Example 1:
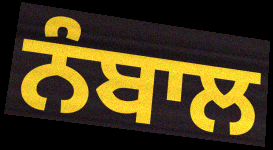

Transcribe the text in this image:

ਨੰਬਾਲ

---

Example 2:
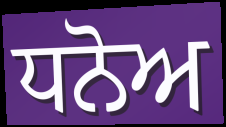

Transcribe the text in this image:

ਧਨੋਅ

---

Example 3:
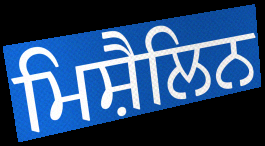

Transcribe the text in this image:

ਮਿਸ਼ੈਲਿਨ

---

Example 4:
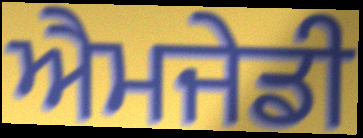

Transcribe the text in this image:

ਐਮਜੇਡੀ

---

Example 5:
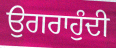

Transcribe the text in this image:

ਉਗਰਾਹੁੰਦੀ